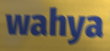
wahya